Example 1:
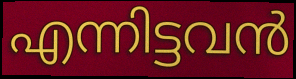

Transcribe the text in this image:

എന്നിട്ടവൻ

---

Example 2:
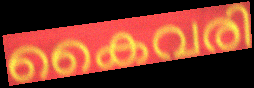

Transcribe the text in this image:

കൈവരി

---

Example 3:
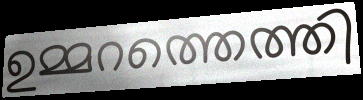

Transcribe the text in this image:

ഉമ്മറത്തെത്തി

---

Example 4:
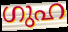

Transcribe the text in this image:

ഗുഹ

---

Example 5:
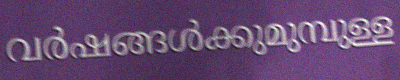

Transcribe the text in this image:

വർഷങ്ങൾക്കുമുമ്പുള്ള